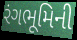
રંગભૂમિની